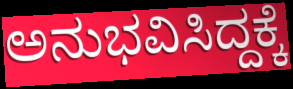
ಅನುಭವಿಸಿದ್ದಕ್ಕೆ